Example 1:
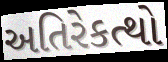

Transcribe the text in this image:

અતિરેકત્થો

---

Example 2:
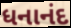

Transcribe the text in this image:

ધનાનંદ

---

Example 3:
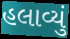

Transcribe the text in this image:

હલાવ્યું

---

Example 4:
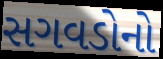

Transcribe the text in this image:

સગવડોનો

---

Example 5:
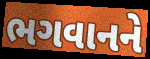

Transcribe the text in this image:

ભગવાનને